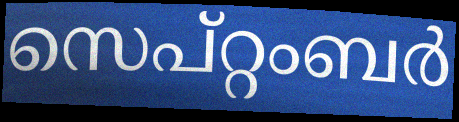
സെപ്റ്റംബർ